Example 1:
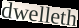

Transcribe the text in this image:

dwelleth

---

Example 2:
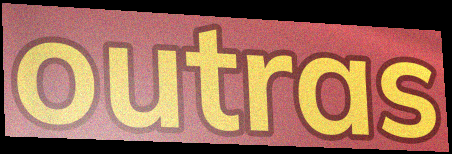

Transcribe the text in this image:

outras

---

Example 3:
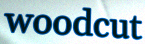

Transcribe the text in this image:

woodcut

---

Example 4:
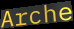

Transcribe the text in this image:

Arche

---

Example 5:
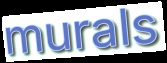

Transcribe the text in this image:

murals